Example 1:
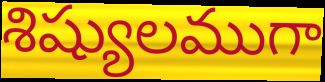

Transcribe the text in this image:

శిష్యులముగా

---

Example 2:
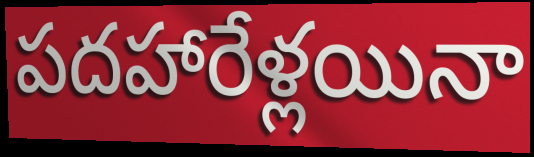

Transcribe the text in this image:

పదహారేళ్లయినా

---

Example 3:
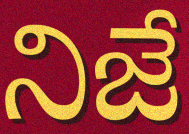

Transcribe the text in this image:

నిజే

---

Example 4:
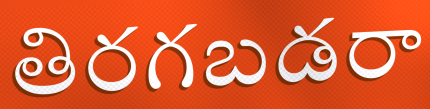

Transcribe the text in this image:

తిరగబడరా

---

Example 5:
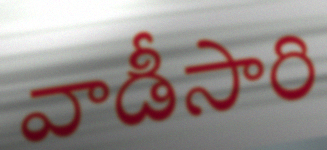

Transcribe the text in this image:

వాడీసారి